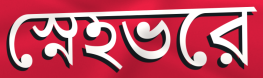
স্নেহভরে